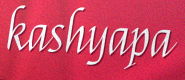
kashyapa